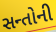
સન્તોની